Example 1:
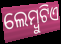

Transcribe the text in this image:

ଲେମ୍ବୁଟିଏ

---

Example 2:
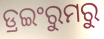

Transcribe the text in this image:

ଡ୍ରଇଂରୁମରୁ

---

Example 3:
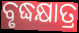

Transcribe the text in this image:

ବୃଦ୍ଧକ୍ଷାତ୍ର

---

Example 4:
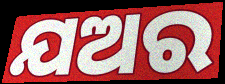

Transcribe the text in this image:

ଯଅର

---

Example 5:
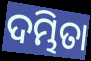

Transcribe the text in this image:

ଦମ୍ଭିତା